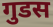
गुडस